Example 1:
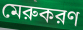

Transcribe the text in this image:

মেরুকরণ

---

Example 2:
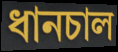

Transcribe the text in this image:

ধানচাল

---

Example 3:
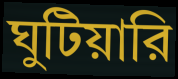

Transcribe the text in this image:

ঘুটিয়ারি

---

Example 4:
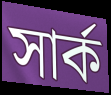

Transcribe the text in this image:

সার্ক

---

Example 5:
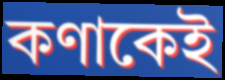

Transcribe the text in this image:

কণাকেই